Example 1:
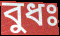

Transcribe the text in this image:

বুধঃ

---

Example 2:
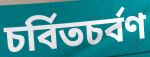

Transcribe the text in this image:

চর্বিতচর্বণ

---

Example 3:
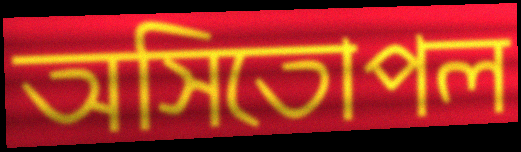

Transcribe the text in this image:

অসিতোপল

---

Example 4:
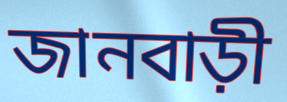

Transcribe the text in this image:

জানবাড়ী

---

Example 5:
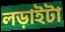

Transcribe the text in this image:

লড়াইটা